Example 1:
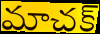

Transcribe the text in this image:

మాచక్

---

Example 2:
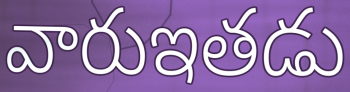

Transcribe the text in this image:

వారుఇతడు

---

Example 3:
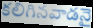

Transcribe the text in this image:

కలిగినవాడనై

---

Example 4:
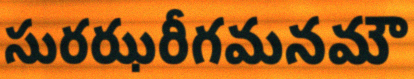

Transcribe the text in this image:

సురఝరీగమనమౌ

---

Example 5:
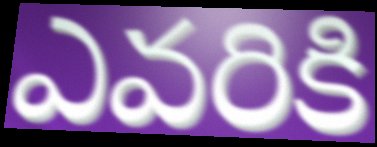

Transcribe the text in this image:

ఎవరికి